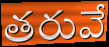
తరువే